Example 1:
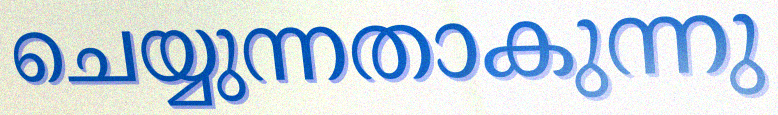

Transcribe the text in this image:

ചെയ്യുന്നതാകുന്നു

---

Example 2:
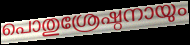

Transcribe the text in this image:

പൊതുശ്രേഷ്ഠനായും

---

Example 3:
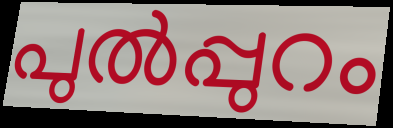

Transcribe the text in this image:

പുൽപ്പുറം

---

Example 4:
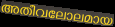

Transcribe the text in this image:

അതീവലോലമായ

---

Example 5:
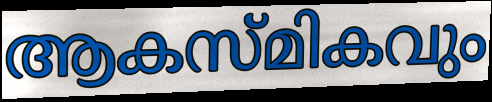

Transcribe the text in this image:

ആകസ്മികവും